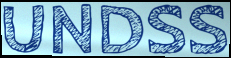
UNDSS